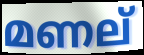
മണല്